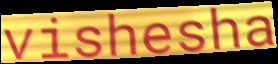
vishesha